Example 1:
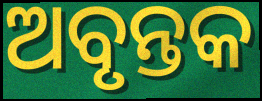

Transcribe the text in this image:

ଅବୃନ୍ତକ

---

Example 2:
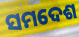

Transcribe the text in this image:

ସମଦେଶ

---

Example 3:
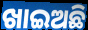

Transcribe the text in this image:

ଖାଇଅଛି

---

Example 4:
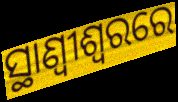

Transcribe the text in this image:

ସ୍ଥାଣ୍ୱୀଶ୍ୱରରେ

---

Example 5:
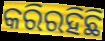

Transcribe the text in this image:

କରିରହିଛି